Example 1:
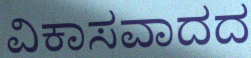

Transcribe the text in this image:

ವಿಕಾಸವಾದದ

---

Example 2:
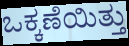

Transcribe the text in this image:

ಒಕ್ಕಣೆಯಿತ್ತು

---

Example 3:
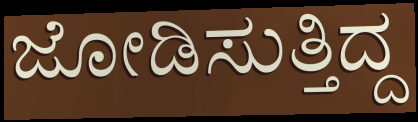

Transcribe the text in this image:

ಜೋಡಿಸುತ್ತಿದ್ದ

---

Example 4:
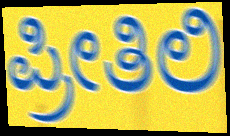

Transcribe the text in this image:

ಪ್ರೀತಿಲಿ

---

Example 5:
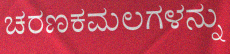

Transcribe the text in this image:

ಚರಣಕಮಲಗಳನ್ನು